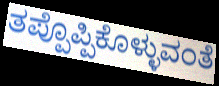
ತಪ್ಪೊಪ್ಪಿಕೊಳ್ಳುವಂತೆ